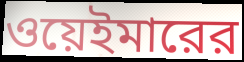
ওয়েইমারের